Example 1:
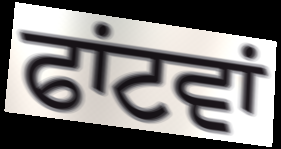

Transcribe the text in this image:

ਫਾਂਟਵਾਂ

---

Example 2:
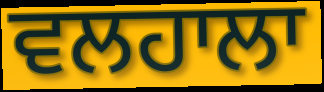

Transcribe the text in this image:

ਵਲਹਾਲਾ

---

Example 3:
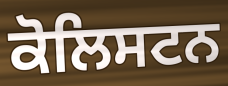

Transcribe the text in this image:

ਕੋਲਿਸਟਨ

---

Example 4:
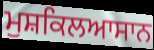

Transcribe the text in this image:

ਮੁਸ਼ਕਿਲਆਸਾਨ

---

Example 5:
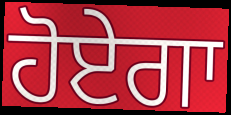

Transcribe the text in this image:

ਹੋਏਗਾ